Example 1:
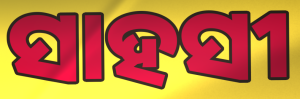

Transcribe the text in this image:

ସାହସୀ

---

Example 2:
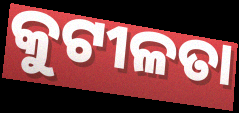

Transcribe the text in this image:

କୁଟୀଳତା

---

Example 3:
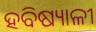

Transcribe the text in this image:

ହବିଷ୍ୟାଳୀ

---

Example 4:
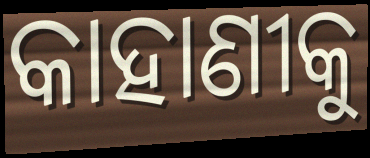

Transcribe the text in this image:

କାହାଣୀକୁ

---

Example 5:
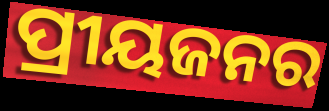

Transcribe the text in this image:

ପ୍ରୀୟଜନର